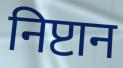
निप्टान